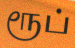
ரூப்